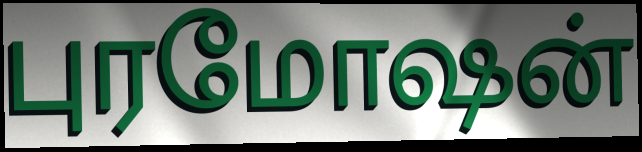
புரமோஷன்